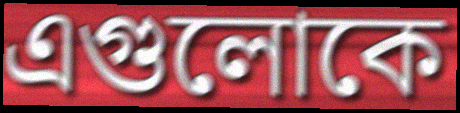
এগুলোকে